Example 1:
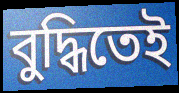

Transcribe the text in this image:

বুদ্ধিতেই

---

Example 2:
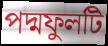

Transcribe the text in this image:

পদ্মফুলটি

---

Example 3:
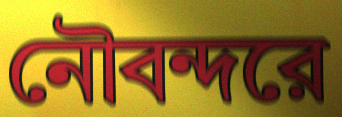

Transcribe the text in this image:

নৌবন্দরে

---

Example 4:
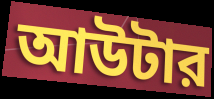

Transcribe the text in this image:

আউটার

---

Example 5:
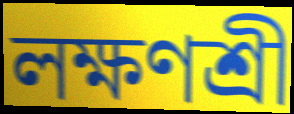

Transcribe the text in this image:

লক্ষণশ্রী